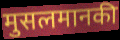
मुसलमानकी